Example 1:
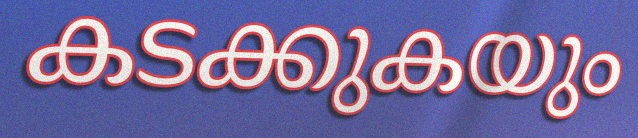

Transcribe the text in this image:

കടക്കുകയും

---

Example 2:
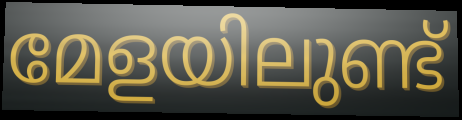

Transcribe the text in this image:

മേളയിലുണ്ട്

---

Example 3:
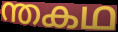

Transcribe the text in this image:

ന്തകഥ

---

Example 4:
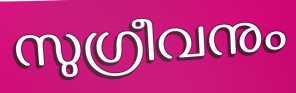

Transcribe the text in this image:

സുഗ്രീവനും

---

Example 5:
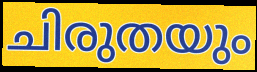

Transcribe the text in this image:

ചിരുതയും